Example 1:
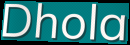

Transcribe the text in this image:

Dhola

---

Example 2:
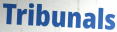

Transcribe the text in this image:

Tribunals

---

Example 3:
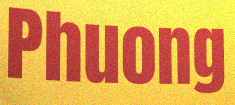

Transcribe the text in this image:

Phuong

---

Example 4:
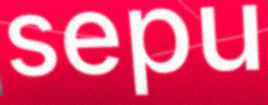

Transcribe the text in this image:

sepu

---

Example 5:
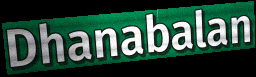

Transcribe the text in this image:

Dhanabalan